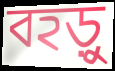
বহড়ু